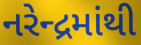
નરેન્દ્રમાંથી